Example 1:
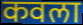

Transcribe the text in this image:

कवला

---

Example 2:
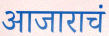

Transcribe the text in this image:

आजाराचं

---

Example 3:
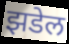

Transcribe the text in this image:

झडेल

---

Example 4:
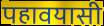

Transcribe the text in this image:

पहावयासी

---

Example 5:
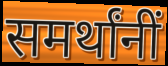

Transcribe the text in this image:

समर्थांनीं